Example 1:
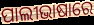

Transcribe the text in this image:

ପାଲୀଭାଷାରେ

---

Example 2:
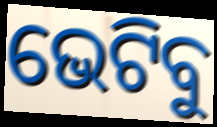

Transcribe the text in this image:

ଭେଟିବୁ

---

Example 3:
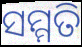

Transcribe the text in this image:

ସମ୍ମତି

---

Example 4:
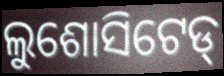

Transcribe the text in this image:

ଲୁଶୋସିଟେଡ୍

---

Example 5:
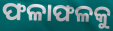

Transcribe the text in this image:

ଫଳାଫଳକୁ